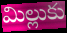
మిల్లుకు